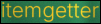
itemgetter